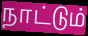
நாட்டும்